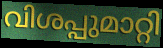
വിശപ്പുമാറ്റി